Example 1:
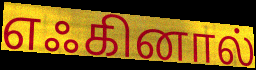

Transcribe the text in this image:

எஃகினால்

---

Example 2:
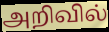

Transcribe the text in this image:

அறிவில்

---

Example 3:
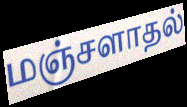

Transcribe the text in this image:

மஞ்சளாதல்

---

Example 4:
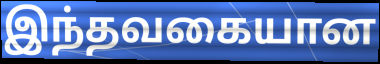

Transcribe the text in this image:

இந்தவகையான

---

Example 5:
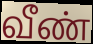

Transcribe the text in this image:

வீண்